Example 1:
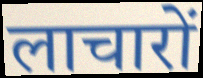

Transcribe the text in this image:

लाचारों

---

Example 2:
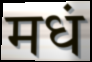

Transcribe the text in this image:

मधं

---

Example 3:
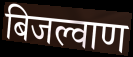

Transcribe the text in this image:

बिजल्वाण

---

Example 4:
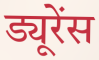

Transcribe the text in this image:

ड्यूरेंस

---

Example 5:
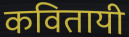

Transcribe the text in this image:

कवितायी